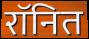
रॉनित